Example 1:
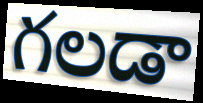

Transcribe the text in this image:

గలడా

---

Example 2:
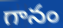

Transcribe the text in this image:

గానం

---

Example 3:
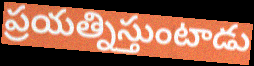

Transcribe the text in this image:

ప్రయత్నిస్తుంటాడు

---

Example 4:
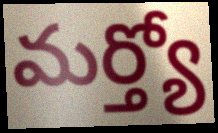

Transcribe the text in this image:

మర్త్యో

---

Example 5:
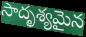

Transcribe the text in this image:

సాదృశ్యమైన